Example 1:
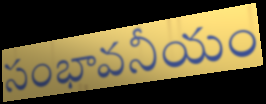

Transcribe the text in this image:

సంభావనీయం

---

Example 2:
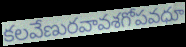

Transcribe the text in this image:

కలవేణురవావశగోపవధూ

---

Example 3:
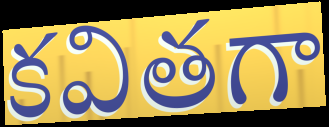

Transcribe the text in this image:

కవితగా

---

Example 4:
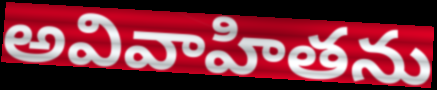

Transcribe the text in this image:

అవివాహితను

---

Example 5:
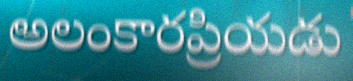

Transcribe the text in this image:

అలంకారప్రియడు